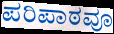
ಪರಿಪಾಠವೂ